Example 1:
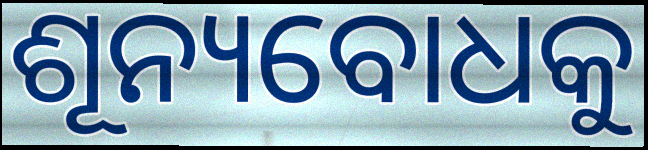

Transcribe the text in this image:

ଶୂନ୍ୟବୋଧକୁ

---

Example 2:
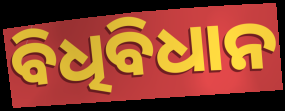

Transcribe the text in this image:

ବିଧିବିଧାନ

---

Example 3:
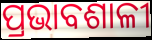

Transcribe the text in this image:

ପ୍ରଭାବଶାଳୀ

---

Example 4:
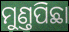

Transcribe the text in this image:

ମୁଣ୍ତପିଛା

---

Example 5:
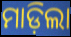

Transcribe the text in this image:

ମାଡ଼ିଲା